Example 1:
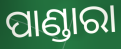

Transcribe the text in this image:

ପାଣ୍ଡାରା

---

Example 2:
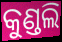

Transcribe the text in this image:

କୁଣ୍ଡଲି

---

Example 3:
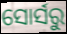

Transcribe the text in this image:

ସୋର୍ସରୁ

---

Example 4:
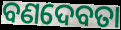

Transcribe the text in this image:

ବଣଦେବତା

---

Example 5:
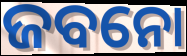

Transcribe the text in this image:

ଜବନୋ